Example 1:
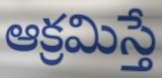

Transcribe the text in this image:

ఆక్రమిస్తే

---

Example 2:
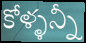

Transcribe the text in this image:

కోళ్ళన్నీ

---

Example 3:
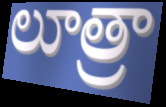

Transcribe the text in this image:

లూత్రా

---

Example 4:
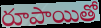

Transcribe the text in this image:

రూపాయితో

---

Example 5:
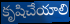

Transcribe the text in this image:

కృషిచేయాలి